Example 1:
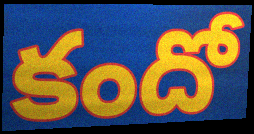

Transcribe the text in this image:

కందో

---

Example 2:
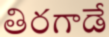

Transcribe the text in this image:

తిరగాడే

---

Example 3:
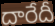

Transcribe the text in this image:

దారేదీ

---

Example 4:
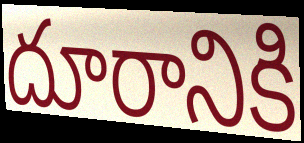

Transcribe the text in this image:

దూరానికి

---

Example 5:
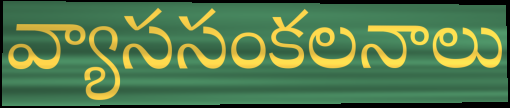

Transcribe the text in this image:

వ్యాససంకలనాలు